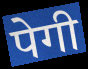
पेगी